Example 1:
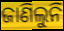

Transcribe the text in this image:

ଜାଣିଲୁନି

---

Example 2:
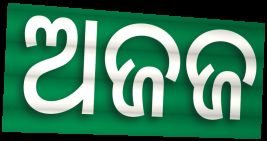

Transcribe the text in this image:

ଅଜଜ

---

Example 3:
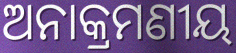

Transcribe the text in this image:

ଅନାକ୍ରମଣୀୟ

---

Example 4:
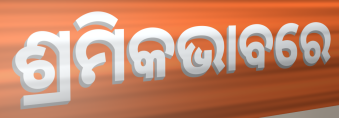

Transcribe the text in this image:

ଶ୍ରମିକଭାବରେ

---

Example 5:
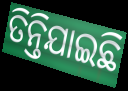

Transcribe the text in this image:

ତିନ୍ତିଯାଇଛି